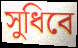
সুধিবে